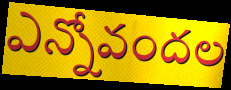
ఎన్నోవందల